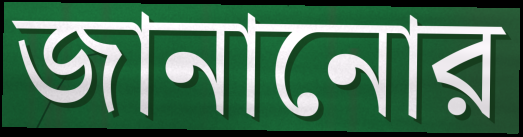
জানানোর